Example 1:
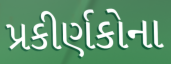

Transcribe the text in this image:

પ્રકીર્ણકોના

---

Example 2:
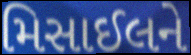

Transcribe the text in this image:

મિસાઈલને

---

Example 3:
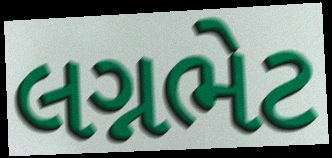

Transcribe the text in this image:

લગ્નભેટ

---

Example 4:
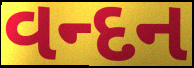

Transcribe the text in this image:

વન્દન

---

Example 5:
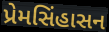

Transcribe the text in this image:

પ્રેમસિંહાસન